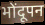
भोंदूपन